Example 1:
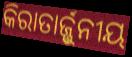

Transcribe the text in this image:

କିରାତାର୍ଜ୍ଜୁନୀୟ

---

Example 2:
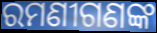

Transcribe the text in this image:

ରମଣୀଗଣଙ୍କ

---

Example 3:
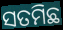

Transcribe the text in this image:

ସତମିଛ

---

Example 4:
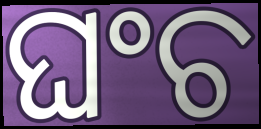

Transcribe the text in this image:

ଘଂଚ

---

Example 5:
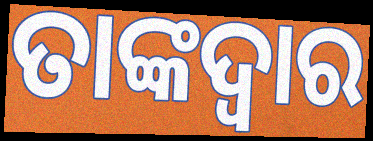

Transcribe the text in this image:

ତାଙ୍କଦ୍ୱାର